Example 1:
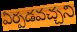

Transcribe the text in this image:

ఏర్పడవచ్చని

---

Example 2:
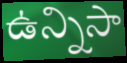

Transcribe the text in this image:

ఉన్నిసా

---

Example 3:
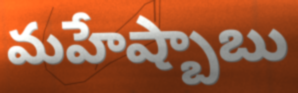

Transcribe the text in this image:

మహేష్బాబు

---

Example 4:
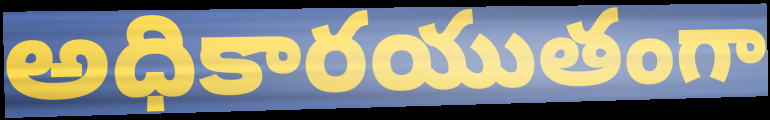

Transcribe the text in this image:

అధికారయుతంగా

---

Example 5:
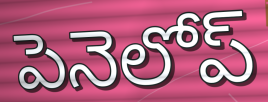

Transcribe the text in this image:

పెనెలోప్